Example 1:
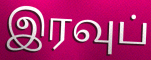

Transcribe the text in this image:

இரவுப்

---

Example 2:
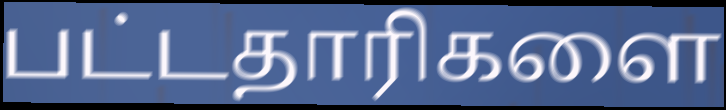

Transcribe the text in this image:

பட்டதாரிகளை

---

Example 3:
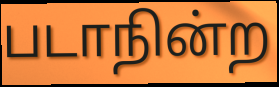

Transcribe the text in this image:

படாநின்ற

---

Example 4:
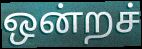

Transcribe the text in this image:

ஒன்றச்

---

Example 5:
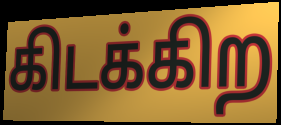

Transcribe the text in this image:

கிடக்கிற